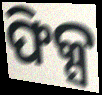
ଫିକ୍ସ